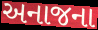
અનાજના